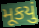
મૂકયું